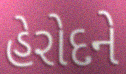
હેરોદને